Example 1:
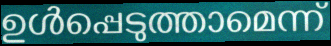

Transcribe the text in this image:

ഉൾപ്പെടുത്താമെന്ന്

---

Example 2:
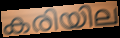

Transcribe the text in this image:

കരിയില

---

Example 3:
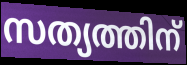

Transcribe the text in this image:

സത്യത്തിന്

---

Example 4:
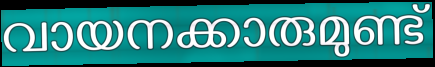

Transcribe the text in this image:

വായനക്കാരുമുണ്ട്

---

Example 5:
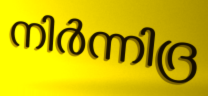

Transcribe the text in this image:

നിർന്നിദ്ര